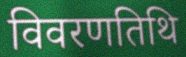
विवरणतिथि